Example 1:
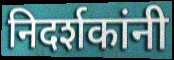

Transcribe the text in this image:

निदर्शकांनी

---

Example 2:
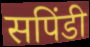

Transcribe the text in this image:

सपिंडी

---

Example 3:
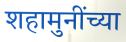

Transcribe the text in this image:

शहामुनींच्या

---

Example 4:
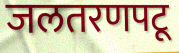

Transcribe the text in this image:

जलतरणपटू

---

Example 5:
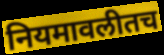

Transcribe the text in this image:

नियमावलीतच